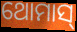
ଥୋମାସ୍